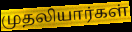
முதலியார்கள்